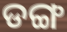
ଡଙ୍ଗ